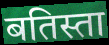
बतिस्ता